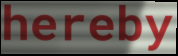
hereby